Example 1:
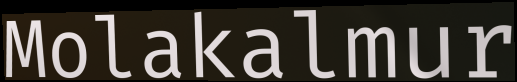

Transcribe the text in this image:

Molakalmur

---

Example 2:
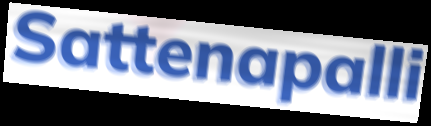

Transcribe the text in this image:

Sattenapalli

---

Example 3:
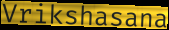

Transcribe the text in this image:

Vrikshasana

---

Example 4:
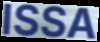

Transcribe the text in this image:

ISSA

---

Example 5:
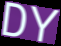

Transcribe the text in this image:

DY